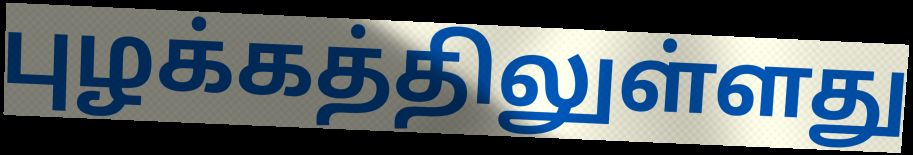
புழக்கத்திலுள்ளது